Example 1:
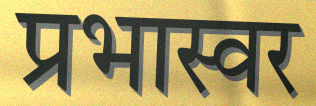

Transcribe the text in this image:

प्रभास्वर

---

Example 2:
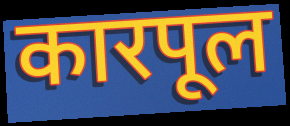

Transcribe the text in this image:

कारपूल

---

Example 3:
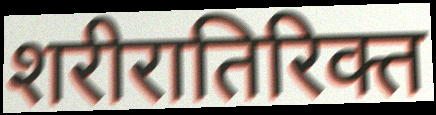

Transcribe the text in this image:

शरीरातिरिक्त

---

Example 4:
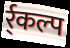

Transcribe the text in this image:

र्र्कल्प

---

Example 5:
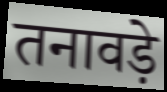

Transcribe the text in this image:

तनावड़े